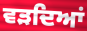
ਵੜਦਿਆਂ